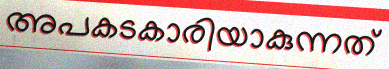
അപകടകാരിയാകുന്നത്